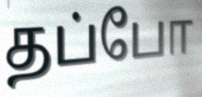
தப்போ